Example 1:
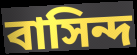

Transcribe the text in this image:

বাসিন্দ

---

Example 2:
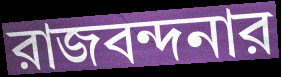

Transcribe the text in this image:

রাজবন্দনার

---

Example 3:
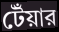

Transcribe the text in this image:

টেঁয়ার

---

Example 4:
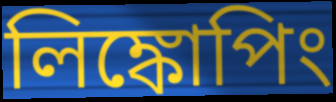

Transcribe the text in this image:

লিঙ্কোপিং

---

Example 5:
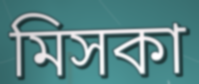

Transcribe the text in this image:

মিসকা